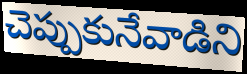
చెప్పుకునేవాడిని